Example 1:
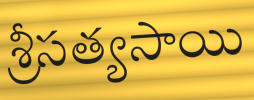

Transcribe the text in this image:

శ్రీసత్యసాయి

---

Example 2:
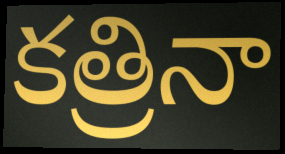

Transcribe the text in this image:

కత్రినా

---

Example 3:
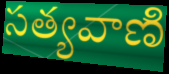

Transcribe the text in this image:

సత్యవాణి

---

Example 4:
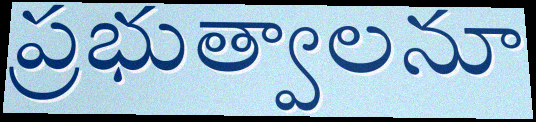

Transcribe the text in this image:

ప్రభుత్వాలనూ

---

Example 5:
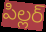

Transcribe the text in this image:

పిల్లర్